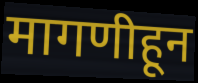
मागणीहून